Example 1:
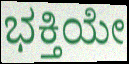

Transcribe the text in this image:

ಭಕ್ತಿಯೇ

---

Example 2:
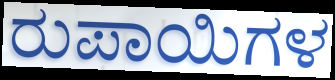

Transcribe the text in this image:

ರುಪಾಯಿಗಳ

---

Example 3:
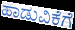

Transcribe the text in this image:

ಹಾಡುವಿಕೆಗೆ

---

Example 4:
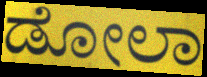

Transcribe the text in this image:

ಡೋಲಾ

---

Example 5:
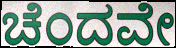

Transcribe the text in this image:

ಚೆಂದವೇ